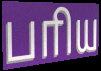
பரிய